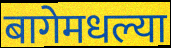
बागेमधल्या